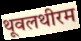
थूवलथीरम